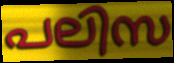
പലിസ